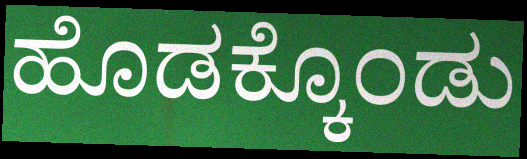
ಹೊಡಕ್ಕೊಂಡು